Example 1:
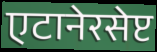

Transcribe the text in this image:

एटानेरसेप्ट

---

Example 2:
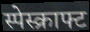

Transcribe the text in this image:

स्पेस्क्राफ्ट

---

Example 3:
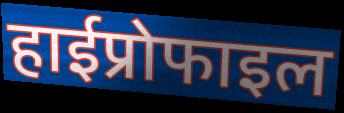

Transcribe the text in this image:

हाईप्रोफाइल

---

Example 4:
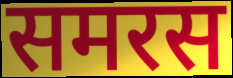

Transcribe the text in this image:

समरस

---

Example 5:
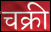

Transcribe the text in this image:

चक्री